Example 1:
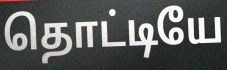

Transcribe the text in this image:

தொட்டியே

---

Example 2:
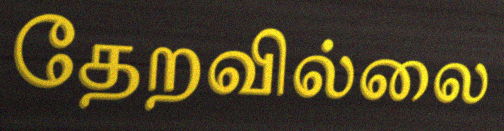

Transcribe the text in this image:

தேறவில்லை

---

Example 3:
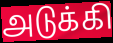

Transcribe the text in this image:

அடுக்கி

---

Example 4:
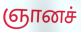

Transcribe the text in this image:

ஞானச்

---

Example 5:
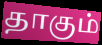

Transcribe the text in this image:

தாகும்